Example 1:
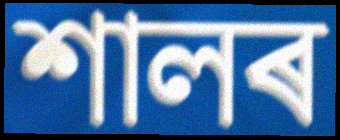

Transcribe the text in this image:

শালৰ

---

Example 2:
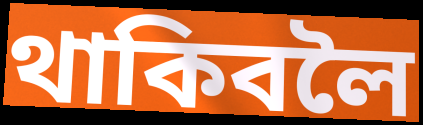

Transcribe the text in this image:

থাকিবলৈ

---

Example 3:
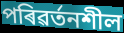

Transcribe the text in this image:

পৰিৱৰ্তনশীল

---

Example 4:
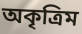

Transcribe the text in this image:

অকৃত্ৰিম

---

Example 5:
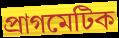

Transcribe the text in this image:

প্ৰাগমেটিক